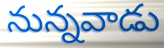
నున్నవాడు